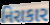
નિરાકાર